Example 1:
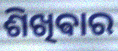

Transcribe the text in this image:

ଶିଖିଵାର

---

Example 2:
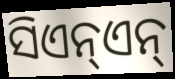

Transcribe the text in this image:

ସିଏନ୍ଏନ୍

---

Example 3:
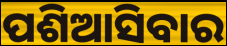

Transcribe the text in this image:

ପଶିଆସିବାର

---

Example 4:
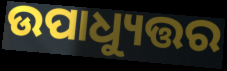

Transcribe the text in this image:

ଉପାଧ୍ୟୁତ୍ତର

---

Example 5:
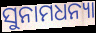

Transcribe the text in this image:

ସୁନାମଧନ୍ୟା